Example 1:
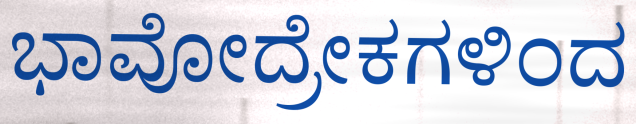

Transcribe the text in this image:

ಭಾವೋದ್ರೇಕಗಳಿಂದ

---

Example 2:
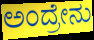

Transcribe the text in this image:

ಅಂದ್ರೇನು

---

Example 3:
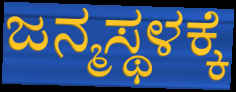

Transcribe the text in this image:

ಜನ್ಮಸ್ಥಳಕ್ಕೆ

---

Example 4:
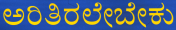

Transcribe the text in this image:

ಅರಿತಿರಲೇಬೇಕು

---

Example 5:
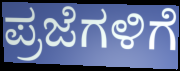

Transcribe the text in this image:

ಪ್ರಜೆಗಳಿಗೆ